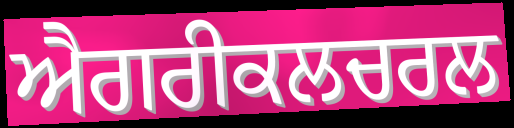
ਐਗਰੀਕਲਚਰਲ